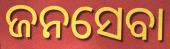
ଜନସେବା